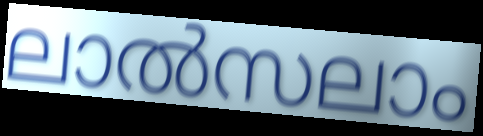
ലാൽസലാം